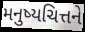
મનુષ્યચિત્તને